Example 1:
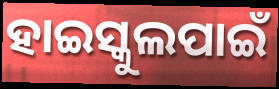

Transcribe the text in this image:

ହାଇସ୍କୁଲପାଇଁ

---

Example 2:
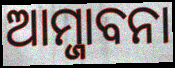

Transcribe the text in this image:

ଆମ୍ଜାବନା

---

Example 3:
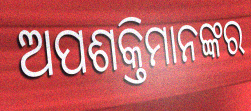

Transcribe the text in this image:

ଅପଶକ୍ତିମାନଙ୍କର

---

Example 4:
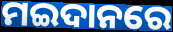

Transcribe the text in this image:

ମଇଦାନରେ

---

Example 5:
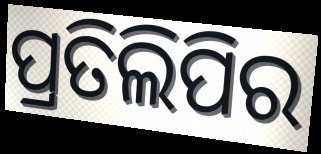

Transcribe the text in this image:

ପ୍ରତିଲିପିର